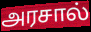
அரசால்